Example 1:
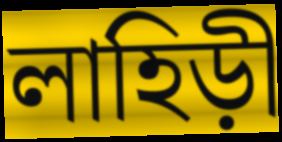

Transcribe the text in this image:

লাহিড়ী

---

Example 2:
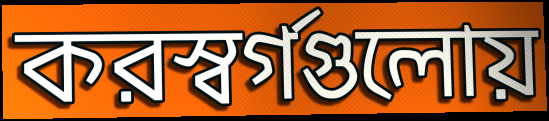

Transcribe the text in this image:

করস্বর্গগুলোয়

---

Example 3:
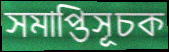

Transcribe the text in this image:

সমাপ্তিসূচক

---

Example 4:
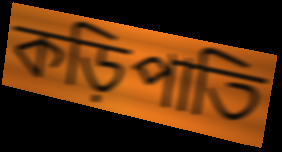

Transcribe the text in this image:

কড়িপাতি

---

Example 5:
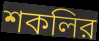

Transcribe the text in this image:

শকলির